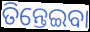
ତିନ୍ତେଇବା